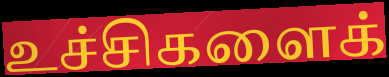
உச்சிகளைக்